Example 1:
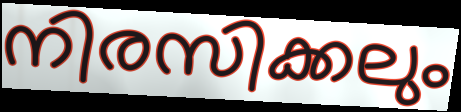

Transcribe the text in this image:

നിരസിക്കലും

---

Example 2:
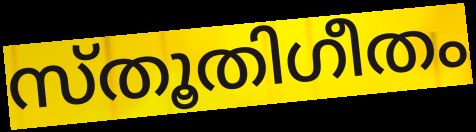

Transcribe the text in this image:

സ്തൂതിഗീതം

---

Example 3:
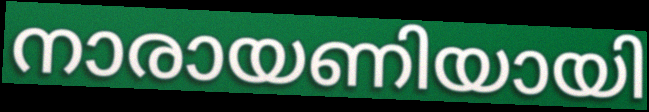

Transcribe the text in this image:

നാരായണിയായി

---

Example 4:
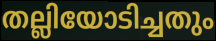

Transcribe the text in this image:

തല്ലിയോടിച്ചതും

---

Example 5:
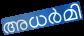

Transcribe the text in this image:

അധർമി